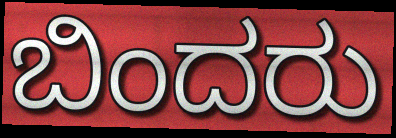
ಬಿಂದರು